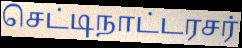
செட்டிநாட்டரசர்